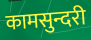
कामसुन्दरी